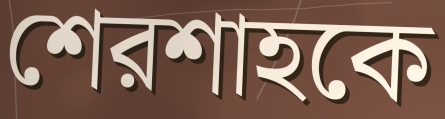
শেরশাহকে